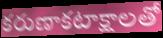
కరుణాకటాక్షాలతో